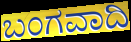
ಬಂಗವಾದಿ